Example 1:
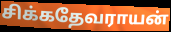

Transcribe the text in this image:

சிக்கதேவராயன்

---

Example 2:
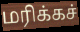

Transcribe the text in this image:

மரிக்கச்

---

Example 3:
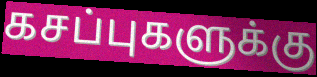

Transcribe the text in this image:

கசப்புகளுக்கு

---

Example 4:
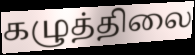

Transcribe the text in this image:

கழுத்திலை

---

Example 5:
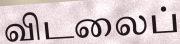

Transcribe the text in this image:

விடலைப்